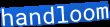
handloom